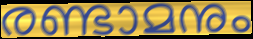
രണ്ടാമനും